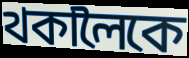
থকালৈকে